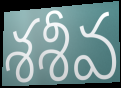
శశీవ